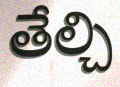
తేల్చి